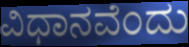
ವಿಧಾನವೆಂದು